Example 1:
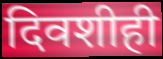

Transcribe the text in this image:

दिवशीही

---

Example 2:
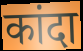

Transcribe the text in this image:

कांदा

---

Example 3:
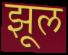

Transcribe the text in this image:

झूल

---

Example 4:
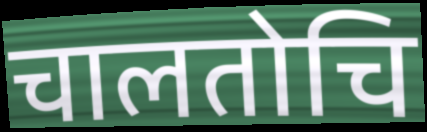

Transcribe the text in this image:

चालतोचि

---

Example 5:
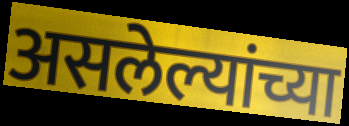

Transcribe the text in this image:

असलेल्यांच्या